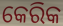
କେରିକ